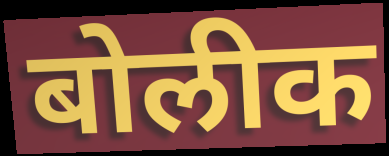
बोलीक